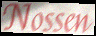
Nossen